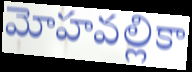
మోహవల్లికా